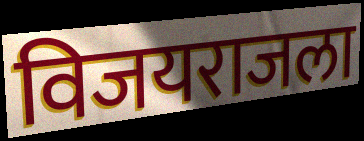
विजयराजला